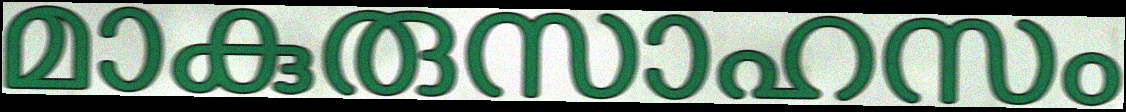
മാകുരുസാഹസം